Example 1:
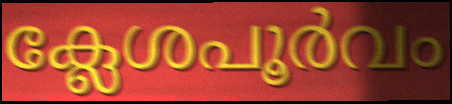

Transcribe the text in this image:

ക്ലേശപൂർവം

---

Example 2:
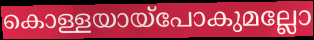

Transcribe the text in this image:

കൊള്ളയായ്പോകുമല്ലോ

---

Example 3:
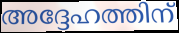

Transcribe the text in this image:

അദ്ദേഹത്തിന്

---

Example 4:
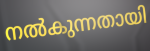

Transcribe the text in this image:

നൽകുന്നതായി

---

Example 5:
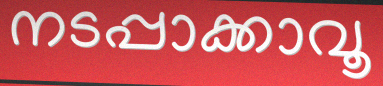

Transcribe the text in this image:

നടപ്പാക്കാവൂ